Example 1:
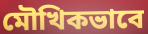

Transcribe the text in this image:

মৌখিকভাবে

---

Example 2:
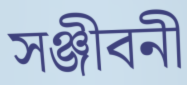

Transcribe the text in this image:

সঞ্জীবনী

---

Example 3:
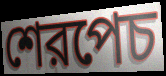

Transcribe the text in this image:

শেরপেচ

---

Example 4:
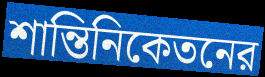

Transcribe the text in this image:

শান্তিনিকেতনের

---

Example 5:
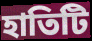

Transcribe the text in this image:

হাতিটি